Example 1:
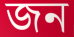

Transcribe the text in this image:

জন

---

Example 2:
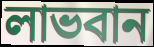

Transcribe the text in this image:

লাভবান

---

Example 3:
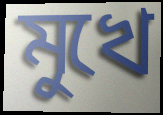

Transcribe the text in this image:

মুখে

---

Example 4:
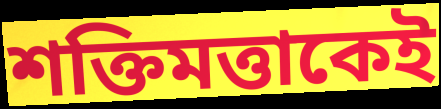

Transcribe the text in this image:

শক্তিমত্তাকেই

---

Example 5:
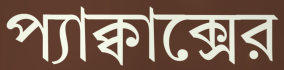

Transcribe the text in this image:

প্যাক্বাক্সের